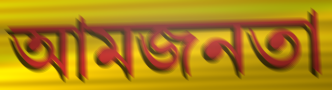
আমজনতা